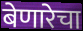
बेणारेचा